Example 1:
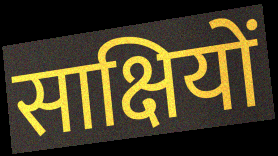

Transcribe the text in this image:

साक्षियों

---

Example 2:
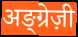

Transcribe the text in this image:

अङ्ग्रेज़ी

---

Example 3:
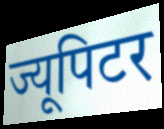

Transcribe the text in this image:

ज्यूपिटर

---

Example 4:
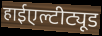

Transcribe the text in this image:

हाईएल्टीट्यूड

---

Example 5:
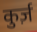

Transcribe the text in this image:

कुर्ज़